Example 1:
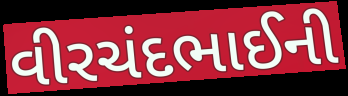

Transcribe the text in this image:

વીરચંદભાઈની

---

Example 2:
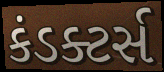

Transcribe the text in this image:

કંડક્ટર્સ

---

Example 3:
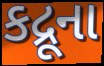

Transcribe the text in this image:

કદ્રૂના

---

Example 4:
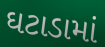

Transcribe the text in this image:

ઘટાડામાં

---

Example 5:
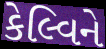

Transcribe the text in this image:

કેલ્વિને